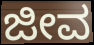
ಜೀವ